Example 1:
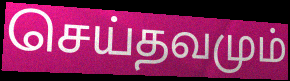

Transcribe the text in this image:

செய்தவமும்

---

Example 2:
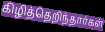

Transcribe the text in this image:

கிழித்தெறிந்தார்கள்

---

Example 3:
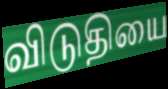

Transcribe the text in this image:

விடுதியை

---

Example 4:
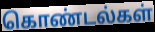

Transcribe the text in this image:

கொண்டல்கள்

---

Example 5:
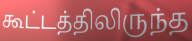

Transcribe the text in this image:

கூட்டத்திலிருந்த